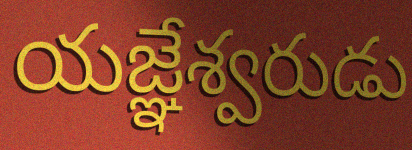
యజ్ఞేశ్వరుడు